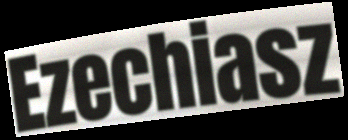
Ezechiasz